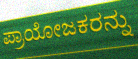
ಪ್ರಾಯೋಜಕರನ್ನು